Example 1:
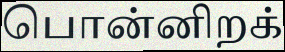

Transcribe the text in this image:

பொன்னிறக்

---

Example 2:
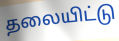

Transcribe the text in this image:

தலையிட்டு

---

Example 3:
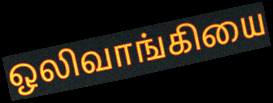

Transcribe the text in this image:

ஒலிவாங்கியை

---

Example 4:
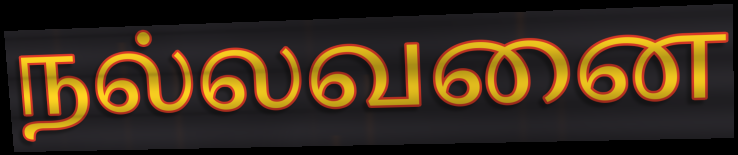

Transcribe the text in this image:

நல்லவனை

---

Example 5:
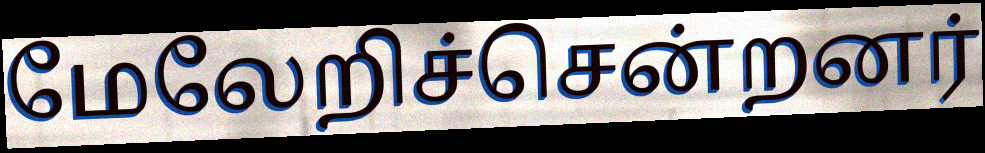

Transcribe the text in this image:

மேலேறிச்சென்றனர்